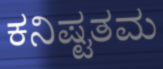
ಕನಿಷ್ಟತಮ